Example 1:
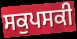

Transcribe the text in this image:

ਸਕੁਪਸਕੀ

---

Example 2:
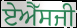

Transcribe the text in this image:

ਏਐੱਸਜੀ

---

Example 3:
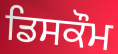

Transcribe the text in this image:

ਡਿਸਕੌਮ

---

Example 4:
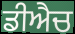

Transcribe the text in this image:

ਡੀਐਚ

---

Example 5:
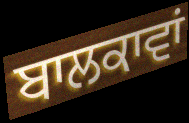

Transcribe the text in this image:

ਬਾਲਕਾਵਾਂ